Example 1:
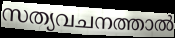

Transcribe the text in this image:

സത്യവചനത്താൽ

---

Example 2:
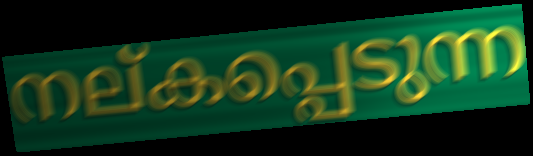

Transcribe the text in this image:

നല്കപ്പെടുന്ന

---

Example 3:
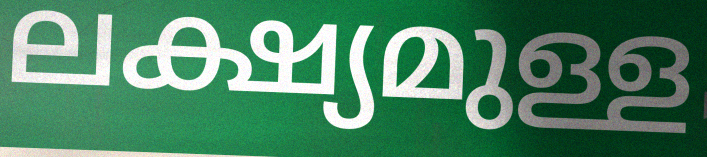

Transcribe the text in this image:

ലക്ഷ്യമുള്ള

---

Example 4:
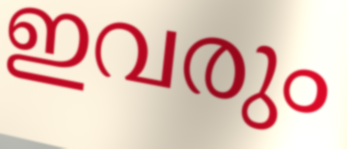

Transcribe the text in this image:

ഇവരും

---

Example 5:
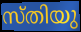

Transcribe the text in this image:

സ്തിയു